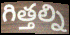
గిత్తల్ని